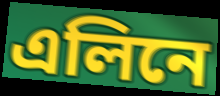
এলিনে